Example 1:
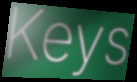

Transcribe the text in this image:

Keys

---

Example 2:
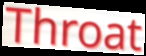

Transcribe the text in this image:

Throat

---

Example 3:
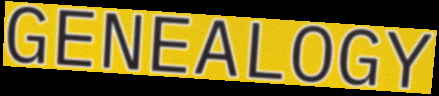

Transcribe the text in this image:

GENEALOGY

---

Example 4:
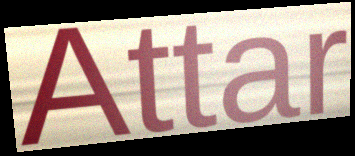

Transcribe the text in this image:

Attar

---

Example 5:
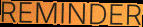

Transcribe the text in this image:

REMINDER